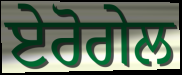
ਏਰੋਗੇਲ